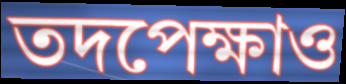
তদপেক্ষাও